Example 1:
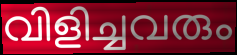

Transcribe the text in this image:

വിളിച്ചവരും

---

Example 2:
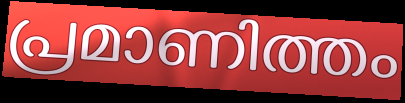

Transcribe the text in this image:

പ്രമാണിത്തം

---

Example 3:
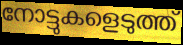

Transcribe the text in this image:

നോട്ടുകളെടുത്ത്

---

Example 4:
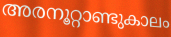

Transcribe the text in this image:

അരനൂറ്റാണ്ടുകാലം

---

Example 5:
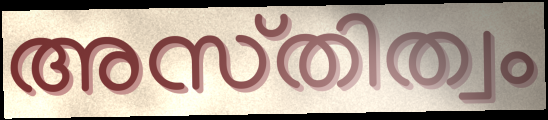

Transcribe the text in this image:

അസ്‌തിത്വം